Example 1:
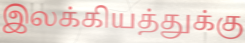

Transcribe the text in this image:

இலக்கியத்துக்கு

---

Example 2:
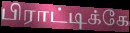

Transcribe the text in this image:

பிராட்டிக்கே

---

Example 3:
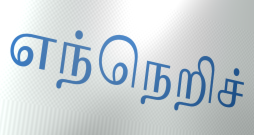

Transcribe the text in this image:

எந்நெறிச்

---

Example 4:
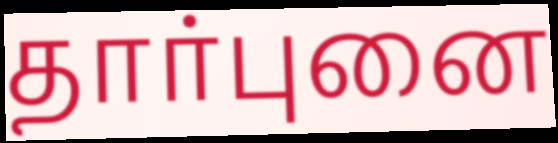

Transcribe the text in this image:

தார்புனை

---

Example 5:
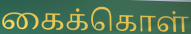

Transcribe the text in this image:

கைக்கொள்